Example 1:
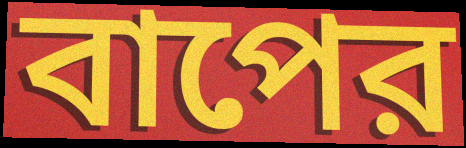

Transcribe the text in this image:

বাপের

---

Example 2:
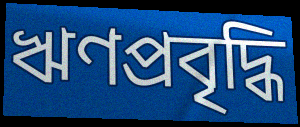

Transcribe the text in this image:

ঋণপ্রবৃদ্ধি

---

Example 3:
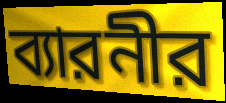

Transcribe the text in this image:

ব্যারনীর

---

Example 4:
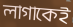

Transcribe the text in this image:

লাগাকেই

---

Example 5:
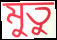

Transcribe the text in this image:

মুতু